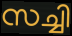
സച്ചി